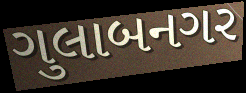
ગુલાબનગર